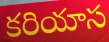
కరియాస